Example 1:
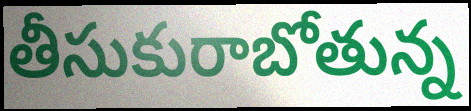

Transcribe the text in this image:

తీసుకురాబోతున్న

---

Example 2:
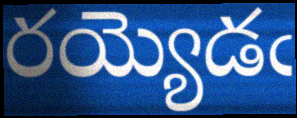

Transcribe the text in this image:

రయ్యెడఁ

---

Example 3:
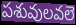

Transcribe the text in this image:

పశువులవలె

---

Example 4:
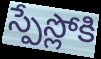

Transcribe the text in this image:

స్పేస్లోకి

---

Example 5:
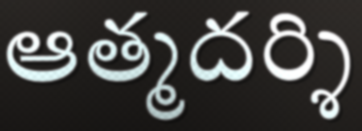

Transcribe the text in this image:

ఆత్మదర్శి